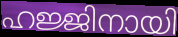
ഹജ്ജിനായി